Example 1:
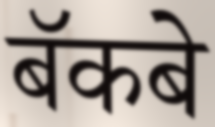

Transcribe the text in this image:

बॅकबे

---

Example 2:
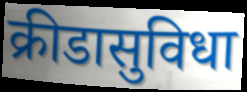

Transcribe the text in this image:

क्रीडासुविधा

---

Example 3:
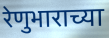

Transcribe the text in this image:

रेणुभाराच्या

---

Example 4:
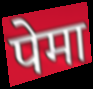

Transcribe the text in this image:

पेमा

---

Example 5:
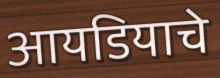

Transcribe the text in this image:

आयडियाचे